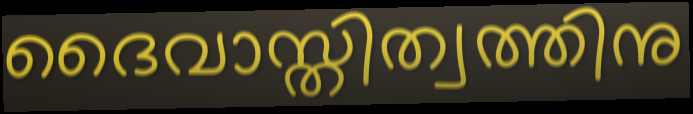
ദൈവാസ്തിത്വത്തിനു